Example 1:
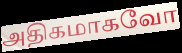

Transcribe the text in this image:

அதிகமாகவோ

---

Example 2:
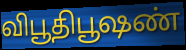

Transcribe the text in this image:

விபூதிபூஷண்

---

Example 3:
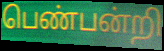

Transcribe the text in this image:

பெண்பன்றி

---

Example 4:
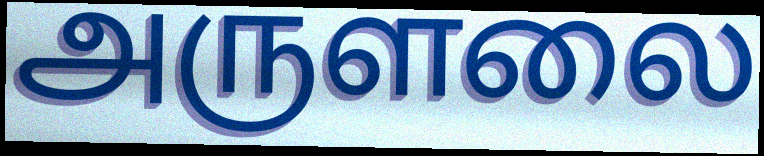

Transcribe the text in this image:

அருளலை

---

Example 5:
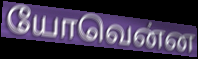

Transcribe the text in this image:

யோவென்ன